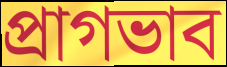
প্রাগভাব